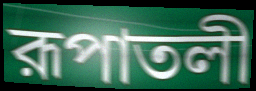
রূপাতলী